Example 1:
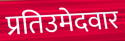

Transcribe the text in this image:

प्रतिउमेदवार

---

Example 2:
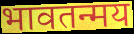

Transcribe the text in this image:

भावतन्मय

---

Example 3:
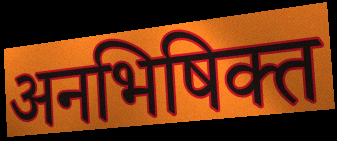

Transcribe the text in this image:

अनभिषिक्त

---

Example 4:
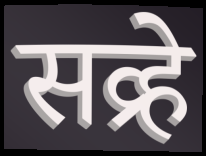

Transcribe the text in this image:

सव्र्हे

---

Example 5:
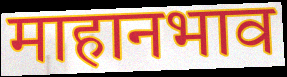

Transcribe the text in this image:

माहानभाव